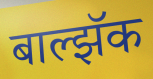
बाल्झॅक